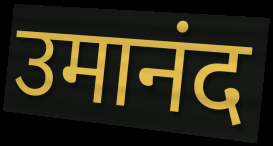
उमानंद